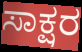
ಸಾಕ್ಷರ